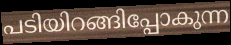
പടിയിറങ്ങിപ്പോകുന്ന